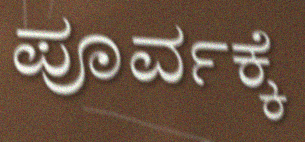
ಪೂರ್ವಕ್ಕೆ